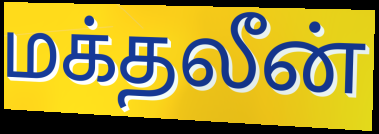
மக்தலீன்